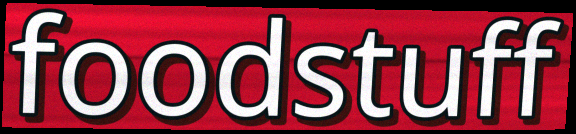
foodstuff